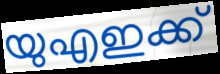
യുഎഇക്ക്